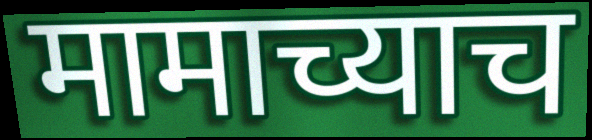
मामाच्याच